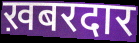
ख़बरदार